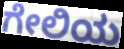
ಗೇಲಿಯ